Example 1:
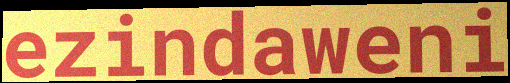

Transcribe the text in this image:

ezindaweni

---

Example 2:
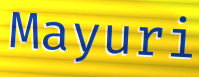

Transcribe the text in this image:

Mayuri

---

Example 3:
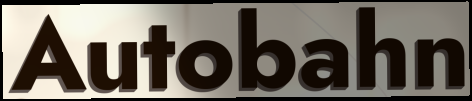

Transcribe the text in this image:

Autobahn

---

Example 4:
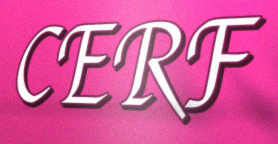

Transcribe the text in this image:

CERF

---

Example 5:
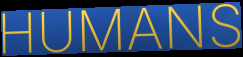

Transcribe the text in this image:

HUMANS